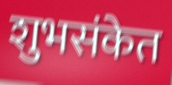
शुभसंकेत